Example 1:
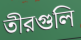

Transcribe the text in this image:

তীরগুলি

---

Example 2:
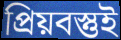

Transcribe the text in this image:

প্রিয়বস্তুই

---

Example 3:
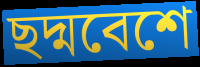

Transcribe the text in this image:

ছদ্মবেশে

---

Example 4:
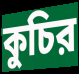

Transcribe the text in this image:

কুচির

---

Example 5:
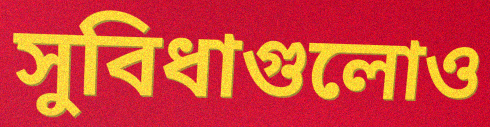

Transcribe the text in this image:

সুবিধাগুলোও